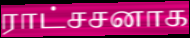
ராட்சசனாக